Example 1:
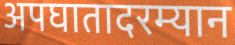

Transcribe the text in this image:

अपघातादरम्यान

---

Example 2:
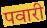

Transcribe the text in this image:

पवारी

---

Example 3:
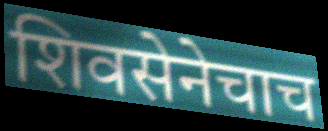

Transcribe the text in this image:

शिवसेनेचाच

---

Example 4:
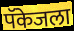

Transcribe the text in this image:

पॅकेजला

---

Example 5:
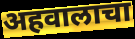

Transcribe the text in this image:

अहवालाचा